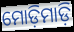
ମୋଡ଼ିମାଡ଼ି